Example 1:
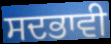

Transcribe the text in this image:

ਸਦਭਾਵੀ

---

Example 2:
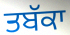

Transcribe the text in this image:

ਤਬੱਕਾ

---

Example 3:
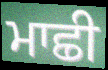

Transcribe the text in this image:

ਮਾਛੀ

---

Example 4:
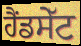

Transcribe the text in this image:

ਹੈਂਡਸੇੱਟ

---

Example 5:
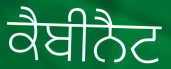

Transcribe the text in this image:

ਕੈਬੀਨੈਟ